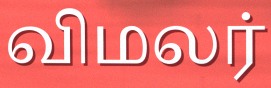
விமலர்